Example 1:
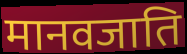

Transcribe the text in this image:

मानवजाति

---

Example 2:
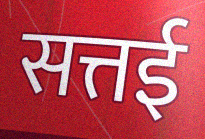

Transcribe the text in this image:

सत्तई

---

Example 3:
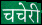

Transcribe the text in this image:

चचेरी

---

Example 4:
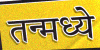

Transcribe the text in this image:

तन्मध्ये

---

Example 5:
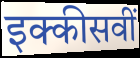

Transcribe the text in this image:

इक्‍कीसवीं